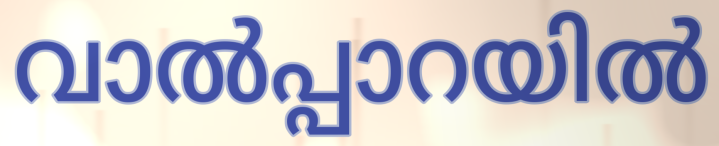
വാൽപ്പാറയിൽ